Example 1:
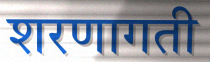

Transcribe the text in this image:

शरणागती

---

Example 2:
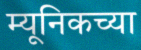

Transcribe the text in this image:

म्यूनिकच्या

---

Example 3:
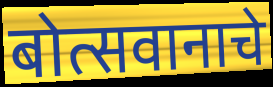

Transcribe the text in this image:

बोत्सवानाचे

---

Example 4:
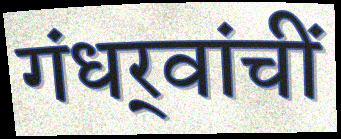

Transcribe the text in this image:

गंधर्वांचीं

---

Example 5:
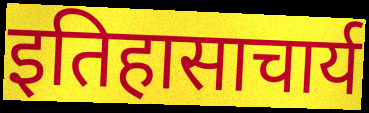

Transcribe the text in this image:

इतिहासाचार्य